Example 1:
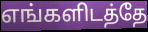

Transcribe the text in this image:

எங்களிடத்தே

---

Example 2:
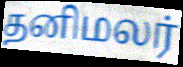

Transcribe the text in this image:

தனிமலர்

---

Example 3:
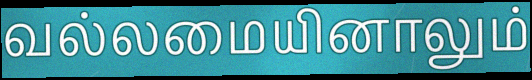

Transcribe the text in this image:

வல்லமையினாலும்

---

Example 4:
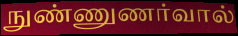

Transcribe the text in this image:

நுண்ணுணர்வால்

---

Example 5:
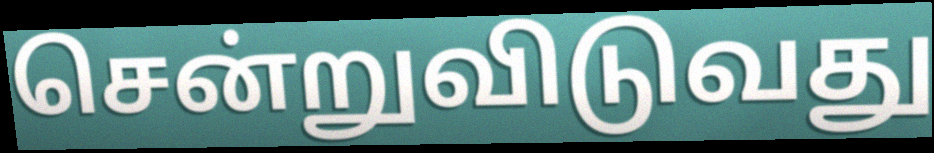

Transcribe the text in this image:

சென்றுவிடுவது